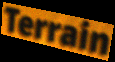
Terrain